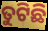
ତୁଟିଛି